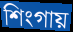
শিংগায়